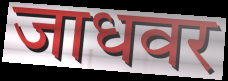
जाधवर